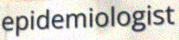
epidemiologist